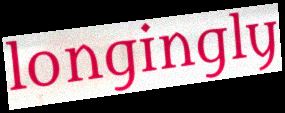
longingly